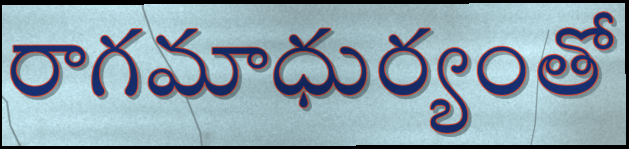
రాగమాధుర్యంతో